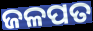
ଜଳପତ